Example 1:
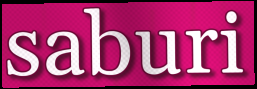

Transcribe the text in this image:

saburi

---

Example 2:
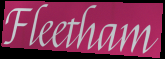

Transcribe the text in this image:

Fleetham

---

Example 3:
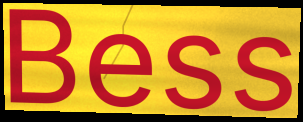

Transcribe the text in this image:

Bess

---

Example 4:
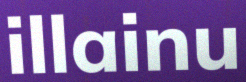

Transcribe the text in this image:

illainu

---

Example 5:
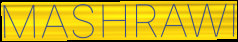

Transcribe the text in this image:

MASHRAWI